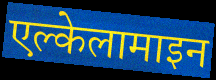
एल्केलामाइन